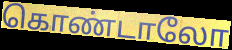
கொண்டாலோ